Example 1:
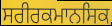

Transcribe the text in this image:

ਸਰੀਰਕਮਾਨਸਿਕ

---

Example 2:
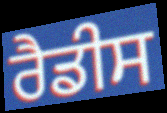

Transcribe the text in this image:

ਰੈਡੀਸ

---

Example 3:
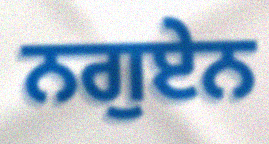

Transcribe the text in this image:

ਨਗੁਏਨ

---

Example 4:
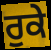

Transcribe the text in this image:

ਰੁਕੇ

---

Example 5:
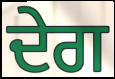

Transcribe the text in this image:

ਦੇਗ